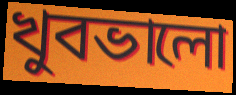
খুবভালো